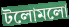
টলোমলো